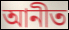
আনীত